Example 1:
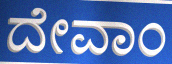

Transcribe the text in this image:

ದೇವಾಂ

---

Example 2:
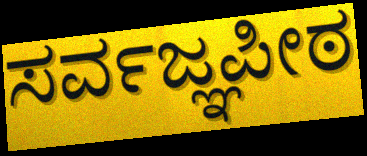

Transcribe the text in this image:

ಸರ್ವಜ್ಞಪೀಠ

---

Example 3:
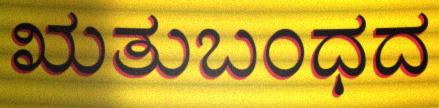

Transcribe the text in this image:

ಋತುಬಂಧದ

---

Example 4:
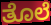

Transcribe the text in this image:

ತೊಲೆ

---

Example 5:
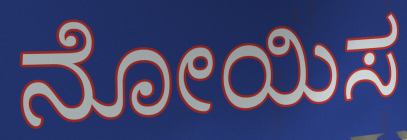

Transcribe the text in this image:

ನೋಯಿಸ